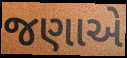
જણાએ